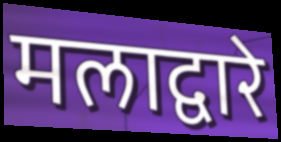
मलाद्वारे